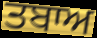
ਤਬਾਅ